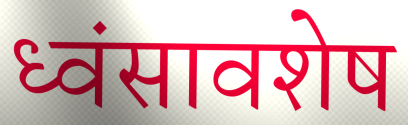
ध्वंसावशेष